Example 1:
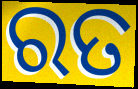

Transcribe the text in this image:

ରତ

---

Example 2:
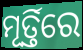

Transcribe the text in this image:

ମୂର୍ତ୍ତିରେ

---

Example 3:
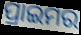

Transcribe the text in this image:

ପ୍ରାଇମର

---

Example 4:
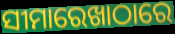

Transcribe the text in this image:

ସୀମାରେଖାଠାରେ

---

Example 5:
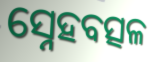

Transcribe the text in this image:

ସ୍ନେହବତ୍ସଳ